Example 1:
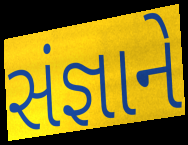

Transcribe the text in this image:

સંજ્ઞાને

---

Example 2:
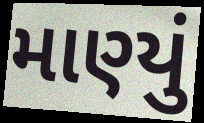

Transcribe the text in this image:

માણ્યું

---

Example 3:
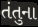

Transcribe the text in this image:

તંતુના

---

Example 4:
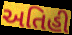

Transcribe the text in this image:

અતિહી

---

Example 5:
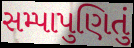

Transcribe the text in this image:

સમ્પાપુણિતું